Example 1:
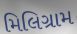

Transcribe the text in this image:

મિલિગ્રામ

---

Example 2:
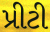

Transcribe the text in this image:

પ્રીટી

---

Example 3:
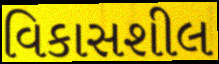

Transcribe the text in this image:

વિકાસશીલ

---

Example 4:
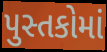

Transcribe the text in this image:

પુસ્તકોમાં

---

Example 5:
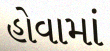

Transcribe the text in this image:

હોવામાં